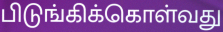
பிடுங்கிக்கொள்வது